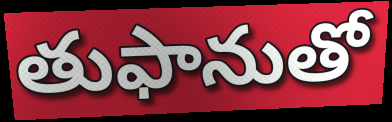
తుఫానుతో